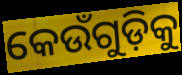
କେଉଁଗୁଡ଼ିକୁ